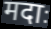
मदाः